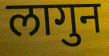
लागुन